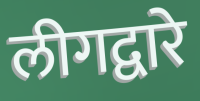
लीगद्वारे